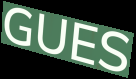
GUES